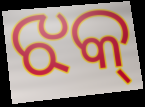
ଝକ୍